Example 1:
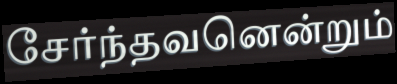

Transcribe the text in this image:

சேர்ந்தவனென்றும்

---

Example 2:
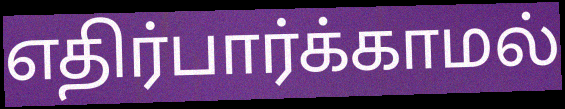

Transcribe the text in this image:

எதிர்பார்க்காமல்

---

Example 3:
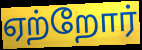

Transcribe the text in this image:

ஏற்றோர்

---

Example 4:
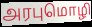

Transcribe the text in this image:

அரபுமொழி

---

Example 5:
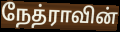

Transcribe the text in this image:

நேத்ராவின்